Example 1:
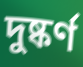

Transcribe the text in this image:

দুষ্কর্ণ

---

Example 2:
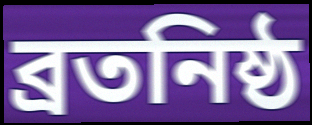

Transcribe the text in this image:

ব্রতনিষ্ঠ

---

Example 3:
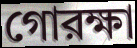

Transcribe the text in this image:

গোরক্ষা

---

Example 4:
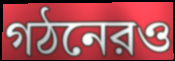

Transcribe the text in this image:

গঠনেরও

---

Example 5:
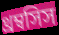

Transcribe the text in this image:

থ্রম্বসিস